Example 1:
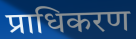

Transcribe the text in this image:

प्राधिकरण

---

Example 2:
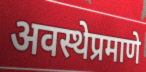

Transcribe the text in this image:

अवस्थेप्रमाणे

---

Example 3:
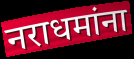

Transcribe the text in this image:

नराधमांना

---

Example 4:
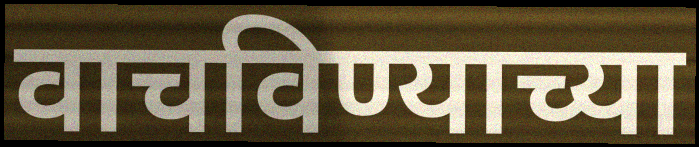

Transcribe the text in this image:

वाचविण्याच्या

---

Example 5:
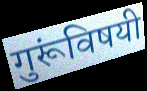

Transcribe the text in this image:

गुरूंविषयी